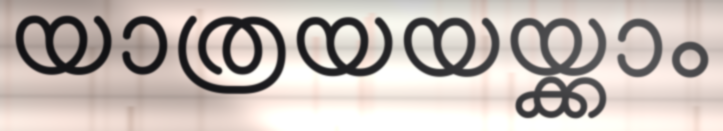
യാത്രയയയ്ക്കാം